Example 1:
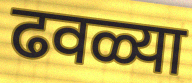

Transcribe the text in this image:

ढवळ्या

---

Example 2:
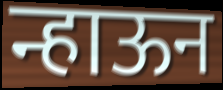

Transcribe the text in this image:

न्हाऊन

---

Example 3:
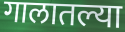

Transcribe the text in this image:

गालातल्या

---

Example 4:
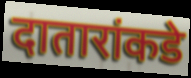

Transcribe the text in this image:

दातारांकडे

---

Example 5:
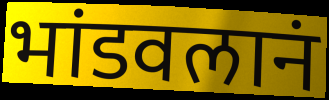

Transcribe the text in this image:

भांडवलानं